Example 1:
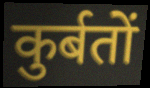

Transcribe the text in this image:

कुर्बतों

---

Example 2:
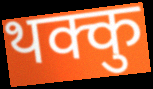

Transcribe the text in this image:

थक्कु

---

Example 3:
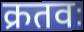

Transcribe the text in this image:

क्रतवः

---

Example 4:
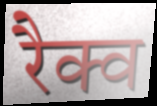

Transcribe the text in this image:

रैक्व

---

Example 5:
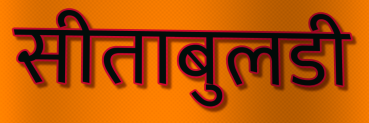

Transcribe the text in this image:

सीताबुलडी